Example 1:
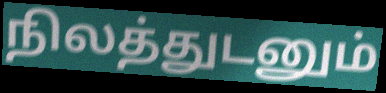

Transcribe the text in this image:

நிலத்துடனும்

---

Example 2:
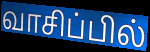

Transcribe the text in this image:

வாசிப்பில்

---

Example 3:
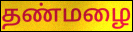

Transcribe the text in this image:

தண்மழை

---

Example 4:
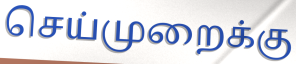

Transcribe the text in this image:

செய்முறைக்கு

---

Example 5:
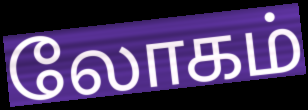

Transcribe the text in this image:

லோகம்